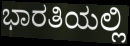
ಭಾರತಿಯಲ್ಲಿ